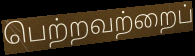
பெற்றவற்றைப்